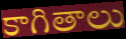
కాగితాలు